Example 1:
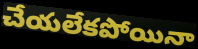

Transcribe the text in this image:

చేయలేకపోయినా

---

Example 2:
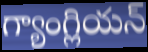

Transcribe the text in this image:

గ్యాంగ్లియన్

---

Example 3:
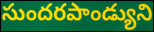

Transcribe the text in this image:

సుందరపాండ్యుని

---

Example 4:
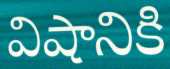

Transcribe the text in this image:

విషానికి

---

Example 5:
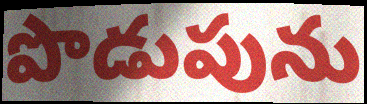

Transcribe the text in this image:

పొడుపును